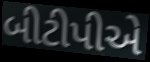
બીટીપીએ